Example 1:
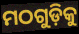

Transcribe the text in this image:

ମଠଗୁଡ଼ିକୁ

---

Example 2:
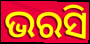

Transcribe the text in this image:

ଭରସି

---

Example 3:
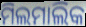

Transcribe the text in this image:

ମିଲମାଲିକ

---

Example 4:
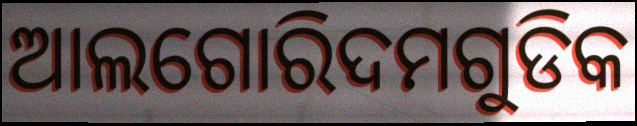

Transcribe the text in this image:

ଆଲଗୋରିଦମଗୁଡିକ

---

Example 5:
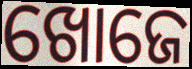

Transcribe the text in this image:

ଖୋଜେ